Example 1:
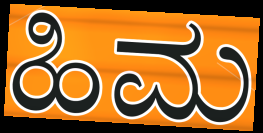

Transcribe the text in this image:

ಹಿಮ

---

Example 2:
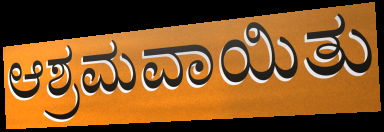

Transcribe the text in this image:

ಆಶ್ರಮವಾಯಿತು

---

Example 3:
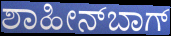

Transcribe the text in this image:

ಶಾಹೀನ್‌ಬಾಗ್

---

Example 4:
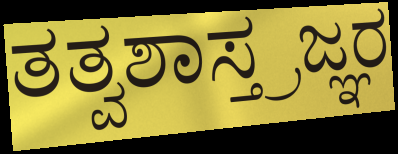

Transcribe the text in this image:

ತತ್ವಶಾಸ್ತ್ರಜ್ಞರ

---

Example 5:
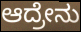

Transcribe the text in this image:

ಆದ್ರೇನು